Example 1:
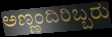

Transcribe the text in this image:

ಅಣ್ಣಂದಿರಿಬ್ಬರು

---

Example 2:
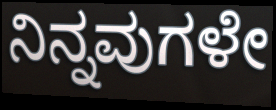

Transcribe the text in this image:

ನಿನ್ನವುಗಳೇ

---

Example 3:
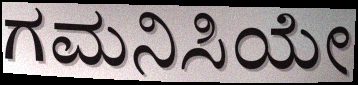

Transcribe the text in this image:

ಗಮನಿಸಿಯೇ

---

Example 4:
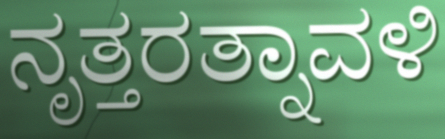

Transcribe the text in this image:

ನೃತ್ತರತ್ನಾವಳಿ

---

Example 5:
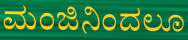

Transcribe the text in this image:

ಮಂಜಿನಿಂದಲೂ